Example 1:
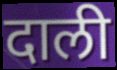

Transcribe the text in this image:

दाली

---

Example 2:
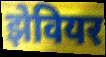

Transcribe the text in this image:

झेवियर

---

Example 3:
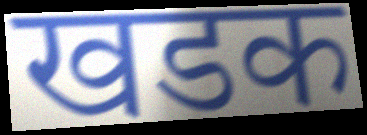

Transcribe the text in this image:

खडक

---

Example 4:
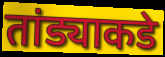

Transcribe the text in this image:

तांड्याकडे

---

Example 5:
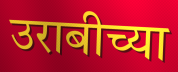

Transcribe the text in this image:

उराबीच्या